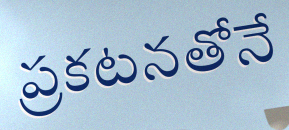
ప్రకటనతోనే